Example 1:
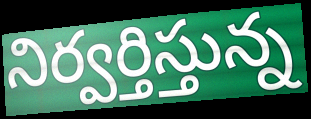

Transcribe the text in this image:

నిర్వర్తిస్తున్న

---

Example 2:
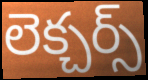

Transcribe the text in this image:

లెక్చర్స్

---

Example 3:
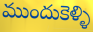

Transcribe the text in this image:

ముందుకెళ్ళి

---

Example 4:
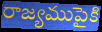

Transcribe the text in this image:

రాజ్యముపైకి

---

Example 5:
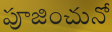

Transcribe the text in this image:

పూజించునో